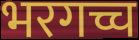
भरगच्च